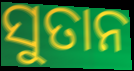
ସୁତାନ